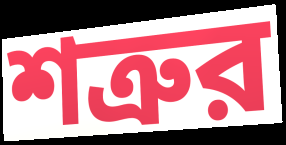
শত্রুর